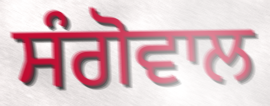
ਸੰਗੋਵਾਲ